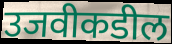
उजवीकडील